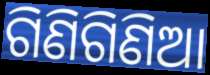
ଗିଣିଗିଣିଆ